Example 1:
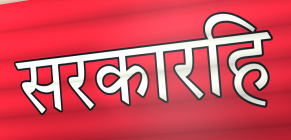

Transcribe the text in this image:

सरकारहि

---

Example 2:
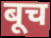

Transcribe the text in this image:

बूच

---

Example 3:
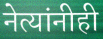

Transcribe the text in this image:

नेत्यांनीही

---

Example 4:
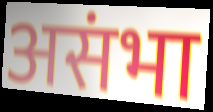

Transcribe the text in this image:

असंभा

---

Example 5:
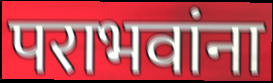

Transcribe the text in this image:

पराभवांना